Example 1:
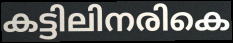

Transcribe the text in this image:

കട്ടിലിനരികെ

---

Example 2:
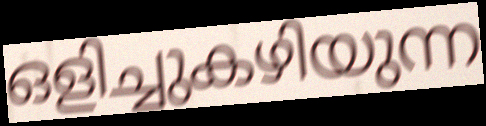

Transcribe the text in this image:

ഒളിച്ചുകഴിയുന്ന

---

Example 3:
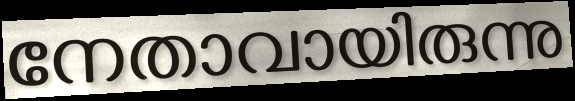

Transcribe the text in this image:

നേതാവായിരുന്നു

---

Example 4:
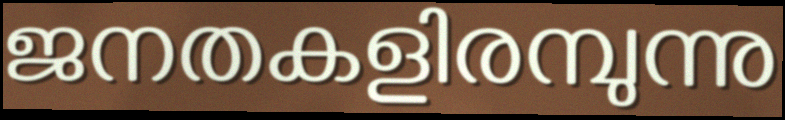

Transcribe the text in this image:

ജനതകളിരമ്പുന്നു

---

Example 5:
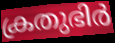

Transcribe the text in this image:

ക്രതുഭിർ